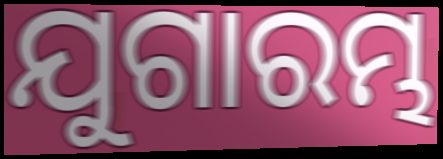
ଯୁଗାରମ୍ଭ